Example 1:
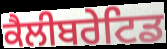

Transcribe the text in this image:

ਕੈਲੀਬਰੇਟਿਡ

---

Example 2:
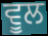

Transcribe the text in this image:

ਵੂਲ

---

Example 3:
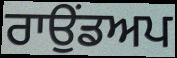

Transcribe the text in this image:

ਰਾਉਂਡਅਪ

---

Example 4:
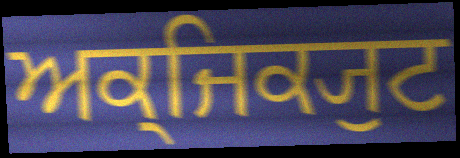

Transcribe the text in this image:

ਅਕ੍ਜਿਕ੍ਯੁਟ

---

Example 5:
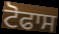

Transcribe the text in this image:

ਟੋਫਾਸ